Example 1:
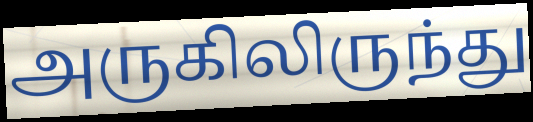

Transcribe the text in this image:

அருகிலிருந்து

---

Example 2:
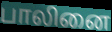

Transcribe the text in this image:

பாலினை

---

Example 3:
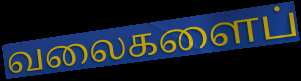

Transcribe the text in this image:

வலைகளைப்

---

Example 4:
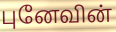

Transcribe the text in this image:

புனேவின்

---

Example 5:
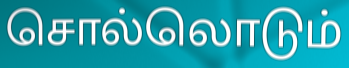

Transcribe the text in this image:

சொல்லொடும்